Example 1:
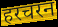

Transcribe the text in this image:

हरचरन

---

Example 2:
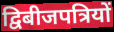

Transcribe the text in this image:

द्विबीजपत्रियों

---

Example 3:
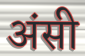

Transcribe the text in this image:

अंसी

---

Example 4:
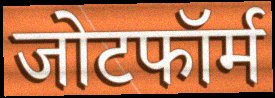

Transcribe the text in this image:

जोटफॉर्म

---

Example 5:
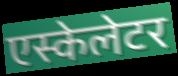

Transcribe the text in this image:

एस्केलेटर